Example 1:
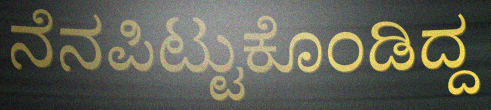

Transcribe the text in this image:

ನೆನಪಿಟ್ಟುಕೊಂಡಿದ್ದ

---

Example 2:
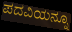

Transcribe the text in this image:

ಪದವಿಯನ್ನೂ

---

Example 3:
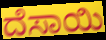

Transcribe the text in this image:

ದೆಸಾಯಿ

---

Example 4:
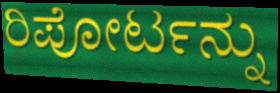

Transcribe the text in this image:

ರಿಪೋರ್ಟನ್ನು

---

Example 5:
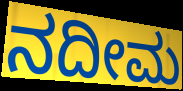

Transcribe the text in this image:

ನದೀಮ